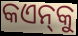
କଏନ୍‌କୁ